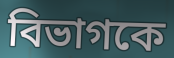
বিভাগকে